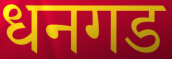
धनगड